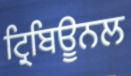
ਟ੍ਰਿਬਿਊਨਲ